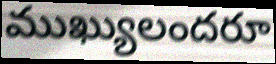
ముఖ్యులందరూ